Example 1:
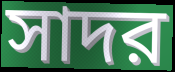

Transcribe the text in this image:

সাদর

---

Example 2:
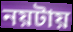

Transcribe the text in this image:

নয়টায়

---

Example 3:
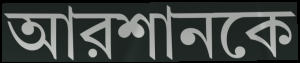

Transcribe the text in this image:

আরশানকে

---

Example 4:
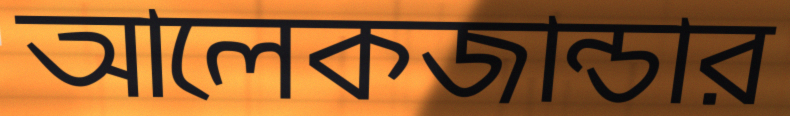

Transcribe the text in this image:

আলেকজান্ডার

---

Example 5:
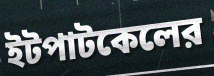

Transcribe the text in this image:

ইটপাটকেলের